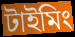
টাইমিং